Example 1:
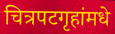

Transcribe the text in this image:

चित्रपटगृहांमधे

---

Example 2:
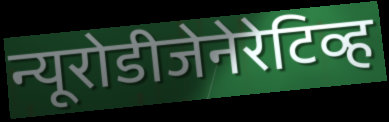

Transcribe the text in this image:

न्यूरोडीजेनेरेटिव्ह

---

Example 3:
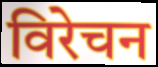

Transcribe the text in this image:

विरेचन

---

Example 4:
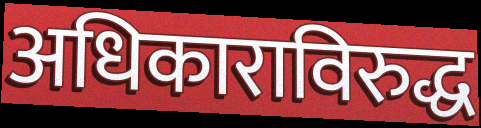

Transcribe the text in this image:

अधिकाराविरुद्ध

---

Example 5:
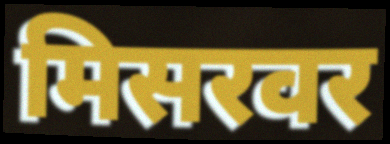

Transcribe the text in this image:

मिसरवर